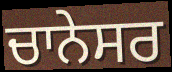
ਚਾਨੇਸਰ